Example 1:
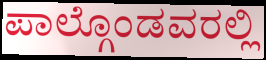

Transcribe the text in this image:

ಪಾಲ್ಗೊಂಡವರಲ್ಲಿ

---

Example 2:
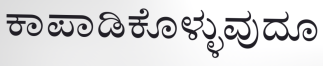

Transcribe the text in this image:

ಕಾಪಾಡಿಕೊಳ್ಳುವುದೂ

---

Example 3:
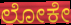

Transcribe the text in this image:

ಲೋಕೇ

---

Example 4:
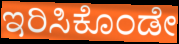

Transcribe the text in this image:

ಇರಿಸಿಕೊಂಡೇ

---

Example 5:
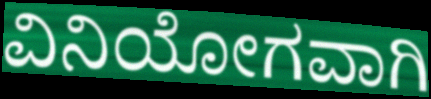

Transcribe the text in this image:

ವಿನಿಯೋಗವಾಗಿ